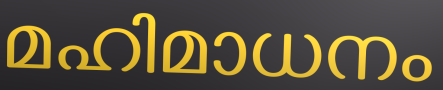
മഹിമാധനം